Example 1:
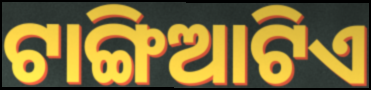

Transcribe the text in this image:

ଟାଙ୍ଗିଆଟିଏ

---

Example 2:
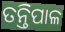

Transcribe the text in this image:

ତନ୍ତିପାଳ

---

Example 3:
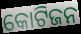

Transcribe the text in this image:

କୋଟିଜନ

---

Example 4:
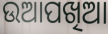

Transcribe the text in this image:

ଉଆପଖିଆ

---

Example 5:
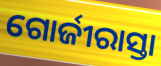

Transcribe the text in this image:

ଗୋର୍ଜୀରାସ୍ତା